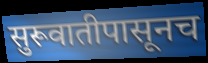
सुरूवातीपासूनच